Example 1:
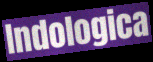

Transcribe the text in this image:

Indologica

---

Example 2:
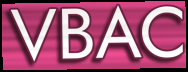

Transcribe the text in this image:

VBAC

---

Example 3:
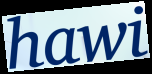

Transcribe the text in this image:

hawi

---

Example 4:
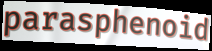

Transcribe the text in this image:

parasphenoid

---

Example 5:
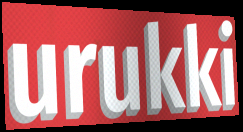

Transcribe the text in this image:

urukki